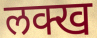
लक्ख